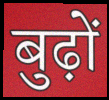
बुढ़ों